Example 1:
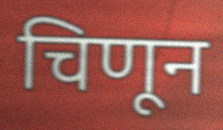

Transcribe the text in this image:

चिणून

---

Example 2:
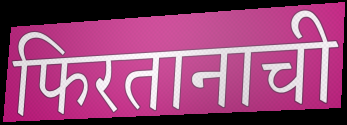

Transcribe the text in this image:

फिरतानाची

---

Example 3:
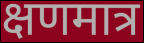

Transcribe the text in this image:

क्षणमात्र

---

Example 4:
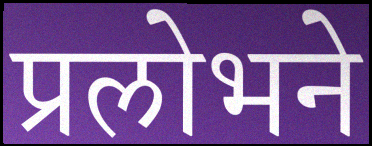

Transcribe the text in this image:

प्रलोभने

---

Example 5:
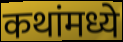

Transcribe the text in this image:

कथांमध्ये